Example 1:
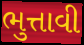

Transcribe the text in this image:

ભુત્તાવી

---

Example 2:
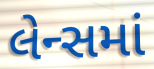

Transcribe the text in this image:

લેન્સમાં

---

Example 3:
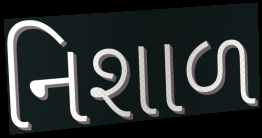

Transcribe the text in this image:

નિશાળ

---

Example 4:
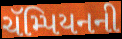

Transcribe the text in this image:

ચૅમ્પિયનની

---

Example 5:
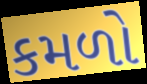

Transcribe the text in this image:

કમળો